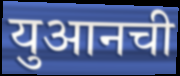
युआनची